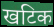
खटिक